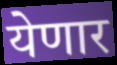
येणार